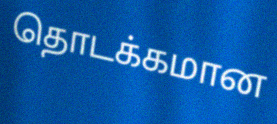
தொடக்கமான